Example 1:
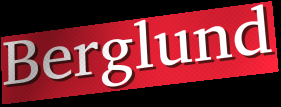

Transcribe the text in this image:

Berglund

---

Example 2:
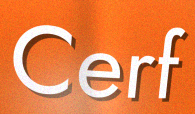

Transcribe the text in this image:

Cerf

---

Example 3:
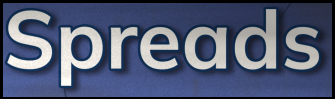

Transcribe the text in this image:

Spreads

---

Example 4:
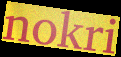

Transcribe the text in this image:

nokri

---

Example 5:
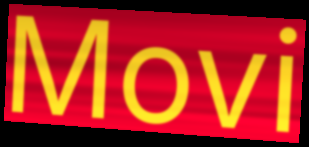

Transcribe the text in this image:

Movi